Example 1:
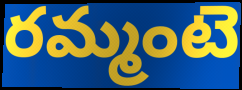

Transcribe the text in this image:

రమ్మంటె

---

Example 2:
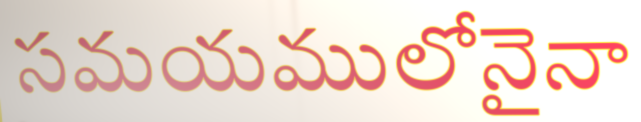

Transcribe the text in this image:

సమయములోనైనా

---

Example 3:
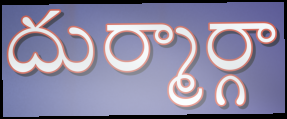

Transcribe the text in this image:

దుర్మార్గా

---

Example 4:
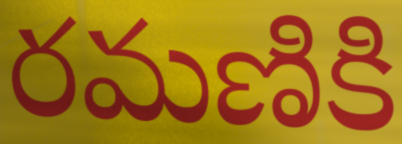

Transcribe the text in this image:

రమణికి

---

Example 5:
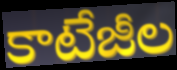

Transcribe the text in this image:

కాటేజీల